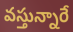
వస్తున్నారే